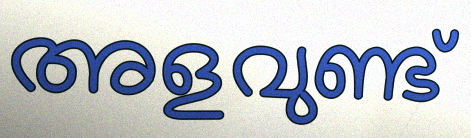
അളവുണ്ട്